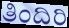
ತಿಂದಿರಿ